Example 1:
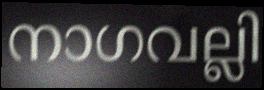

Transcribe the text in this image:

നാഗവല്ലി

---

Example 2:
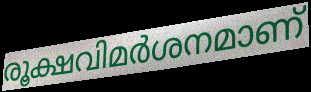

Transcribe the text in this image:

രൂക്ഷവിമർശനമാണ്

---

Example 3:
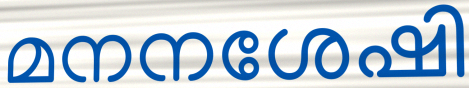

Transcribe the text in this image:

മനനശേഷി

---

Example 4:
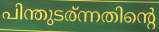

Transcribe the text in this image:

പിന്തുടര്ന്നതിന്റെ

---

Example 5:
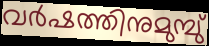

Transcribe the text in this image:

വർഷത്തിനുമുമ്പു്